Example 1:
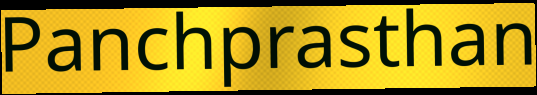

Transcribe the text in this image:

Panchprasthan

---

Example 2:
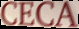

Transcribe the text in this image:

CECA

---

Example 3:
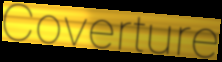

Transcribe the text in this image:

Coverture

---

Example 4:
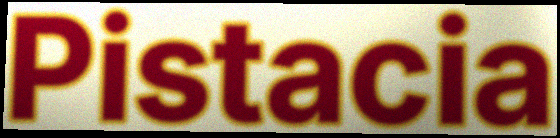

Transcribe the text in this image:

Pistacia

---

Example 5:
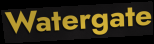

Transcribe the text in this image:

Watergate